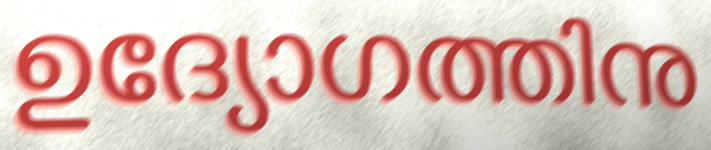
ഉദ്യോഗത്തിനു